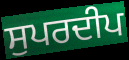
ਸੁਪਰਦੀਪ